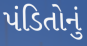
પંડિતોનું